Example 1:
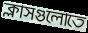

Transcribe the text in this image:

ক্লাসগুলোতে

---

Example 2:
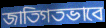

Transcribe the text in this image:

জাতিগতভাবে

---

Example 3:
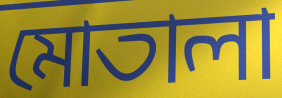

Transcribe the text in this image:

মোতালা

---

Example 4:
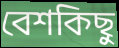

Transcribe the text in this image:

বেশকিছু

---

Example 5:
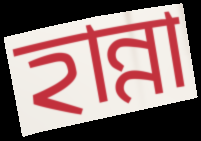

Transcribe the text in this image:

হান্না